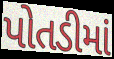
પોતડીમાં